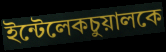
ইন্টেলেকচুয়ালকে